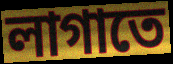
লাগাতে